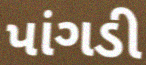
પાંગડી